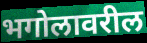
भगोलावरील